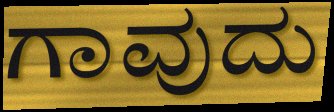
ಗಾವುದು